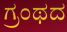
ಗ್ರಂಥದ